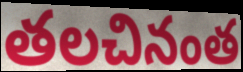
తలచినంత